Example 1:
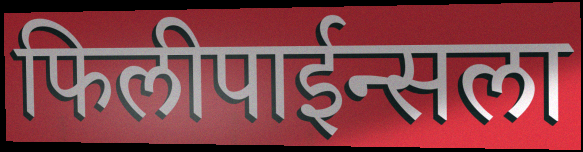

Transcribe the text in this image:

फिलीपाईन्सला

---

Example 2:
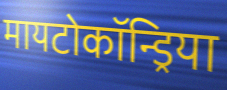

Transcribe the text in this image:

मायटोकॉन्ड्रिया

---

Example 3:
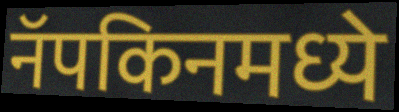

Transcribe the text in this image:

नॅपकिनमध्ये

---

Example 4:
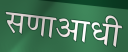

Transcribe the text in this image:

सणाआधी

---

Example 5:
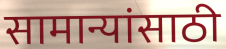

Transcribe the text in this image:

सामान्यांसाठी